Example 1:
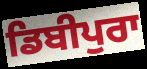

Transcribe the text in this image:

ਡਿਬੀਪੁਰਾ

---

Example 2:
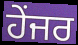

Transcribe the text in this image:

ਹੇਂਜਰ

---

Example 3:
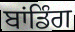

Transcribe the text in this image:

ਬਾਂਡਿੰਗ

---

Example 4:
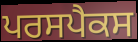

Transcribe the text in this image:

ਪਰਸਪੈਕਸ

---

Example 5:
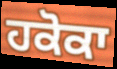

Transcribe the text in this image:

ਹਕੋਕਾ